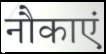
नौकाएं